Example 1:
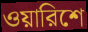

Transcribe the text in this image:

ওয়ারিশে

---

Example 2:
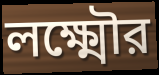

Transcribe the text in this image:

লক্ষ্মৌর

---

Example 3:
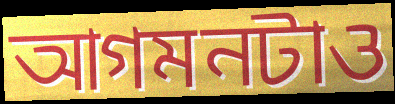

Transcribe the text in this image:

আগমনটাও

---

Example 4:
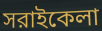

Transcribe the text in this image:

সরাইকেলা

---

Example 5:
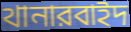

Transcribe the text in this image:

থানারবাইদ